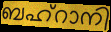
ബഹ്റാനി